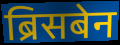
ब्रिसबेन